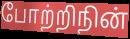
போற்றிநின்